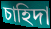
চাহিদা